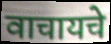
वाचायचे